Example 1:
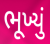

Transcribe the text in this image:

ભૂખ્યું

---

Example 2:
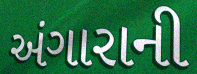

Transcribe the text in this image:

અંગારાની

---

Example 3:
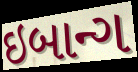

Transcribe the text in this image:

ઇબાન્ગ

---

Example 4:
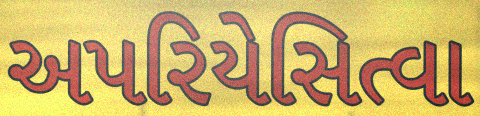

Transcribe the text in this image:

અપરિયેસિત્વા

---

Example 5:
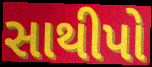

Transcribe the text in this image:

સાથીપો